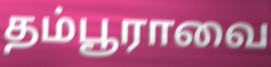
தம்பூராவை